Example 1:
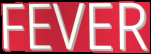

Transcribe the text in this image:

FEVER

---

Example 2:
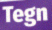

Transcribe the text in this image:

Tegn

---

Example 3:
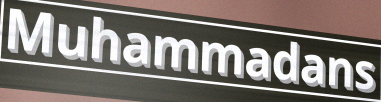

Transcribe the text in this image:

Muhammadans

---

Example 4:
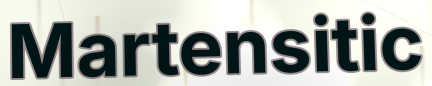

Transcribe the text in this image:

Martensitic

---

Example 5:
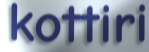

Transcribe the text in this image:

kottiri